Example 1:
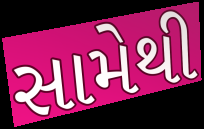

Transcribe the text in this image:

સામેથી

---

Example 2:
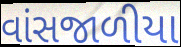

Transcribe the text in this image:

વાંસજાળીયા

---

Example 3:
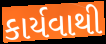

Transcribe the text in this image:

કાર્યવાથી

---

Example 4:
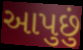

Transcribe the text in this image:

આપુછું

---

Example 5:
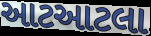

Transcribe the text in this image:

આટઆટલા